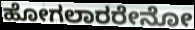
ಹೋಗಲಾರರೇನೋ